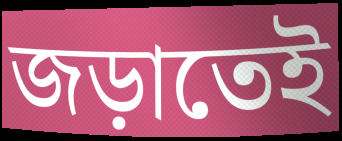
জড়াতেই